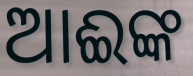
ଆଈଙ୍କ